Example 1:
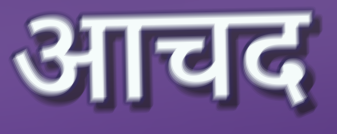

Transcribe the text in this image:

आचद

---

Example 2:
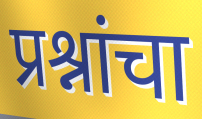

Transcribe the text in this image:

प्रश्नांचा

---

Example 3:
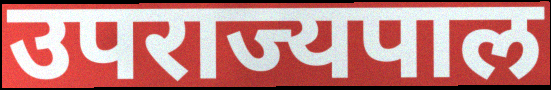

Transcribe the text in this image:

उपराज्यपाल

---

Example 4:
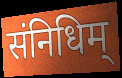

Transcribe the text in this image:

संनिधिम्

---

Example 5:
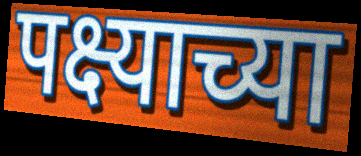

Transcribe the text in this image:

पक्ष्याच्या